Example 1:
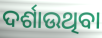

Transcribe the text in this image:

ଦର୍ଶାଉଥିବା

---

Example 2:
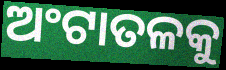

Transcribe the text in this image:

ଅଂଟାତଳକୁ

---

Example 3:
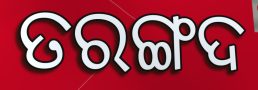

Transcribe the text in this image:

ତରଙ୍ଗଦ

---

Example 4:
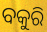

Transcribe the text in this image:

ବକୁରି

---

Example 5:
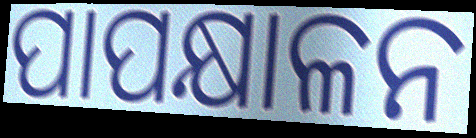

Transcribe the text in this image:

ପାପକ୍ଷାଳନ